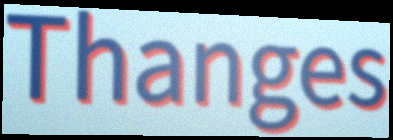
Thanges